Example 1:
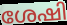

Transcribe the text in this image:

ശേഷി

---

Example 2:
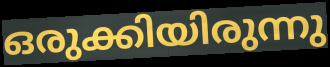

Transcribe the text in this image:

ഒരുക്കിയിരുന്നു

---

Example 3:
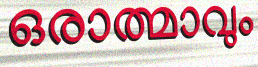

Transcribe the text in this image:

ഒരാത്മാവും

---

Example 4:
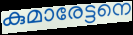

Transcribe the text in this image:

കുമാരേട്ടനെ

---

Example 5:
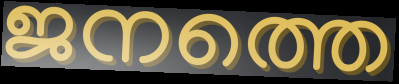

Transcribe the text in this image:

ജനത്തെ